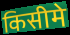
किसीमे